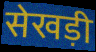
सेखड़ी